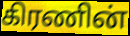
கிரணின்